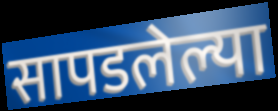
सापडलेल्या